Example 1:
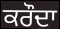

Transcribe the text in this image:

ਕਰੌਦਾ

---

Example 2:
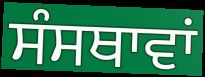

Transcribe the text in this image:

ਸੰਸਥਾਵਾਂ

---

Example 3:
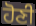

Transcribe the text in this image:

ਹੋਣੀ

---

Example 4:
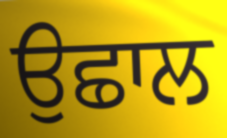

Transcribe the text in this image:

ਉਛਾਲ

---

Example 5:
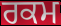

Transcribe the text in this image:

ਰਕਮ